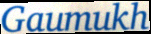
Gaumukh